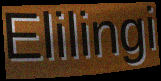
Elilingi